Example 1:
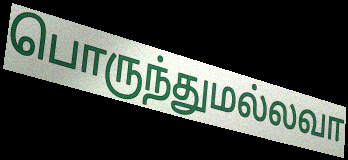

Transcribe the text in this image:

பொருந்துமல்லவா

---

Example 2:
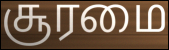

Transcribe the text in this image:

சூரமை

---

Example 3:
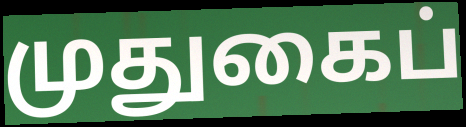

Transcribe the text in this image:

முதுகைப்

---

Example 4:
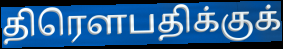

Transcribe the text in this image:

திரௌபதிக்குக்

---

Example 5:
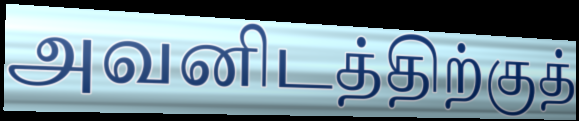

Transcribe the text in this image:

அவனிடத்திற்குத்